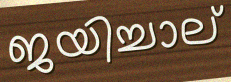
ജയിച്ചാല്